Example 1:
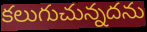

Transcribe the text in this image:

కలుగుచున్నదను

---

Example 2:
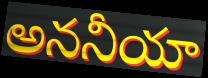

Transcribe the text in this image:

అననీయా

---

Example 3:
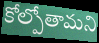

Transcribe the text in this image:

కోల్పోతామని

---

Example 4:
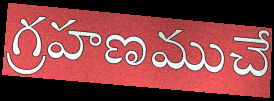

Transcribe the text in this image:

గ్రహణముచే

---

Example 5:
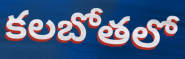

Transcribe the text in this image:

కలబోతలో